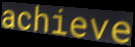
achieve